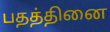
பதத்தினை